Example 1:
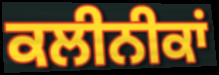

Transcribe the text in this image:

ਕਲੀਨੀਕਾਂ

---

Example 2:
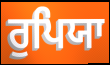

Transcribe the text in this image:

ਰੁਪਿਯਾ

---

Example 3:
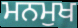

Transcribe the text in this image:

ਮਨਮੁਖ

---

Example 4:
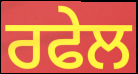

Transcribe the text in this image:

ਰਫੇਲ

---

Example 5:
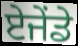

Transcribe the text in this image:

ਏਜੇਂਡੇ